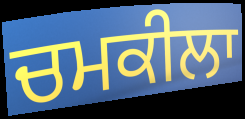
ਚਮਕੀਲਾ